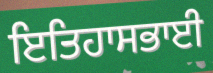
ਇਤਿਹਾਸਭਾਈ